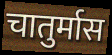
चातुर्मास